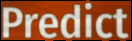
Predict